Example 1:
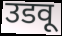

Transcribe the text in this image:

उडवू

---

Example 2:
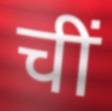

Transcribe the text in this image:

चीं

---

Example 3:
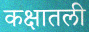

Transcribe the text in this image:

कक्षातली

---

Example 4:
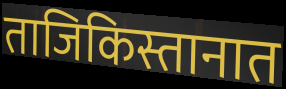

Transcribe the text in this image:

ताजिकिस्तानात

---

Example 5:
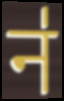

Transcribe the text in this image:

न॑